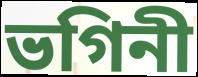
ভগিনী